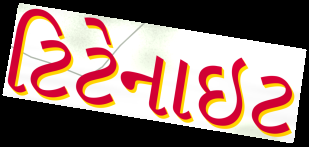
ટિટેનાઇટ